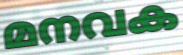
മനവക